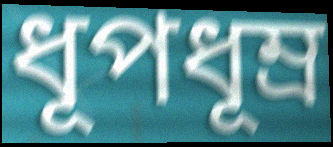
ধূপধূম্র